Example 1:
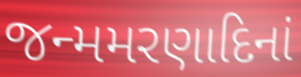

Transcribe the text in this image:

જન્મમરણાદિનાં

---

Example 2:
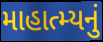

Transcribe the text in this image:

માહાત્મ્યનું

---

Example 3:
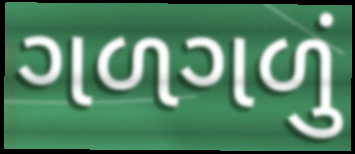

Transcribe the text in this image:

ગળગળું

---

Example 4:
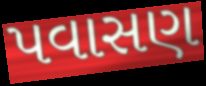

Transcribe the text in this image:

પવાસણ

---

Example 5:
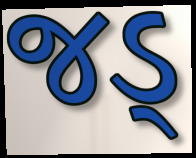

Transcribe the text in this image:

જડ્